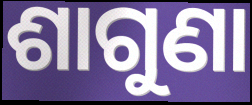
ଶାଗୁଣା